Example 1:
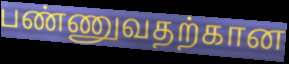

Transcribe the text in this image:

பண்ணுவதற்கான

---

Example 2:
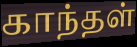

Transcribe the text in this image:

காந்தள்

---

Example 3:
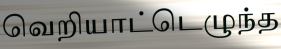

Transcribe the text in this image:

வெறியாட்டெழுந்த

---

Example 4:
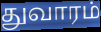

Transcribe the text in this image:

துவாரம்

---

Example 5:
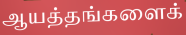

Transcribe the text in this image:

ஆயத்தங்களைக்